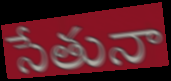
సేతునా